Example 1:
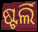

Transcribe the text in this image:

ଷ୍ଟର୍ଲି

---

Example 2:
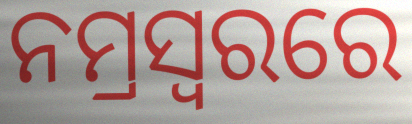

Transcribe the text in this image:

ନମ୍ରସ୍ୱରରେ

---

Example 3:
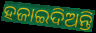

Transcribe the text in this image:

ହଜାଇଦିଅନ୍ତି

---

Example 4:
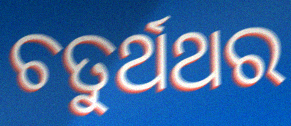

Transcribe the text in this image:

ଚତୁର୍ଥଥର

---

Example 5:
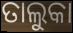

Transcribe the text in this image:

ତାଲୁକା